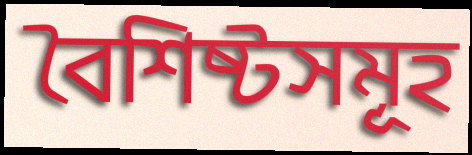
বৈশিষ্টসমূহ